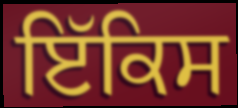
ਇੱਕਿਸ